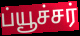
ப்யூச்சர்